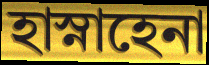
হাস্নাহেনা